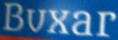
Buxar